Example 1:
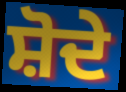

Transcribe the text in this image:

ਸ਼ੋਦੇ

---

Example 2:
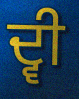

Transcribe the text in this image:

ਦ੍ਵੀ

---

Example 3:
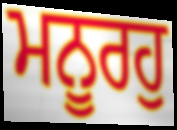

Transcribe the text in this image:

ਮਨੂਰਹੁ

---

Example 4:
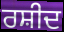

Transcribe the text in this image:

ਰਸ਼ੀਦ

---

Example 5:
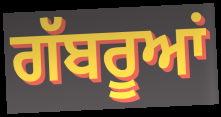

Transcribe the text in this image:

ਗੱਬਰੂਆਂ